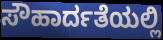
ಸೌಹಾರ್ದತೆಯಲ್ಲಿ